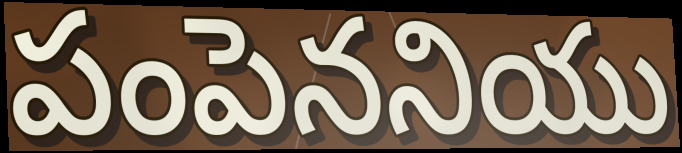
పంపెననియు